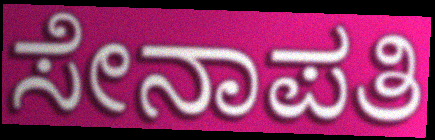
ಸೇನಾಪತಿ